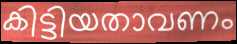
കിട്ടിയതാവണം